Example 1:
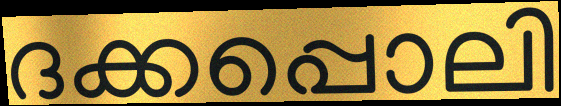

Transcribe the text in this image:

ദക്കപ്പൊലി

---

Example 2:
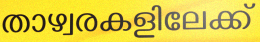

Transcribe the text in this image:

താഴ്വരകളിലേക്ക്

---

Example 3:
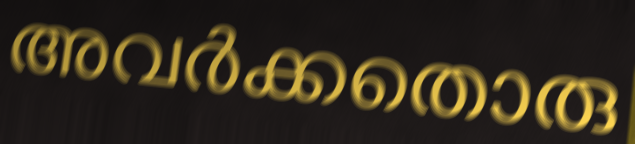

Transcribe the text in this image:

അവർക്കതൊരു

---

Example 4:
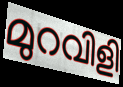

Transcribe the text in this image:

മുറവിളി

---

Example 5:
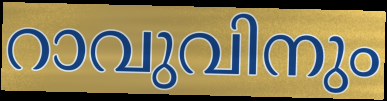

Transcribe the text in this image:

റാവുവിനും